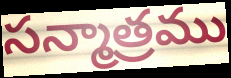
సన్మాత్రము